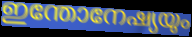
ഇന്തോനേഷ്യയും